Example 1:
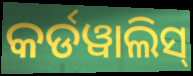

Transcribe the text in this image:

କର୍ଡୱାଲିସ୍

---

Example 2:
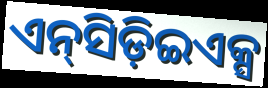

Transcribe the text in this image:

ଏନ୍‍ସିଡ଼ିଇଏକ୍ସ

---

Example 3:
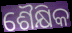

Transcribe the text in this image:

ଶୈକ୍ଷିକ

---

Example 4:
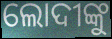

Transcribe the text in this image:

ଲୋଦୀଙ୍କୁ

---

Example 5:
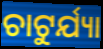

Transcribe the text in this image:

ଚାଟୁର୍ଯ୍ୟା